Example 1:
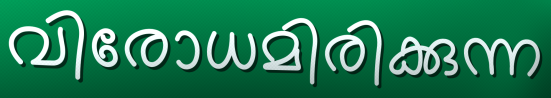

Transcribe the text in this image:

വിരോധമിരിക്കുന്ന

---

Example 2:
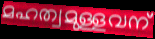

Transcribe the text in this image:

മഹത്വമുള്ളവന്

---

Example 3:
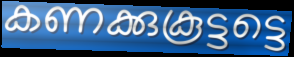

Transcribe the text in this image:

കണക്കുകൂട്ടട്ടെ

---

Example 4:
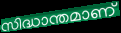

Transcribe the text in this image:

സിദ്ധാന്തമാണ്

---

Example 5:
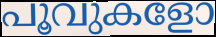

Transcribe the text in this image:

പൂവുകളോ